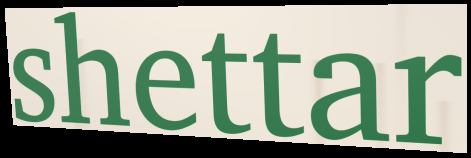
shettar